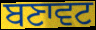
ਬਣਾਵਟ